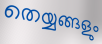
തെയ്യങ്ങളും